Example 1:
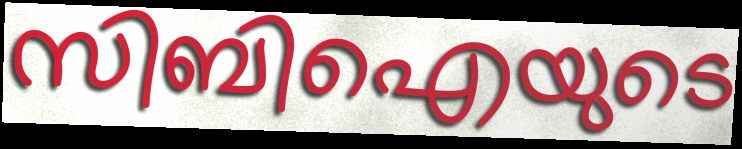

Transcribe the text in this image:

സിബിഐയുടെ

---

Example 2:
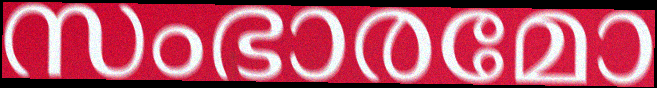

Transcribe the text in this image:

സംഭാരമോ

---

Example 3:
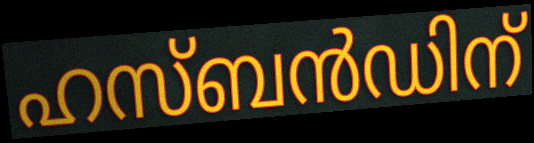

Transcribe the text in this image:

ഹസ്ബൻഡിന്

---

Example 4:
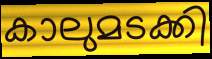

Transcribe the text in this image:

കാലുമടക്കി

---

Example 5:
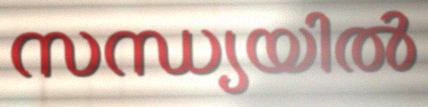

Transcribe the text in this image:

സന്ധ്യയിൽ